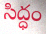
సిద్ధం